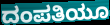
ದಂಪತಿಯೂ